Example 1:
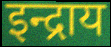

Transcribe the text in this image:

इन्द्राय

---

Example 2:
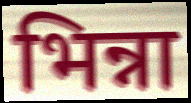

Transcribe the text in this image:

भिन्ना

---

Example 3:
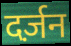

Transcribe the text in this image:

दर्ज़न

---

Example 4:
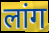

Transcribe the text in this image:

लांग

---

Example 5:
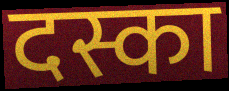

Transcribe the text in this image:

दस्का